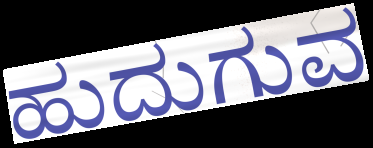
ಹುದುಗುವ